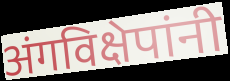
अंगविक्षेपांनी